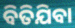
ବିତିଯିବା